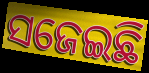
ସଜେଇଛି